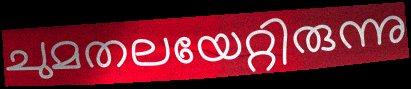
ചുമതലയേറ്റിരുന്നു